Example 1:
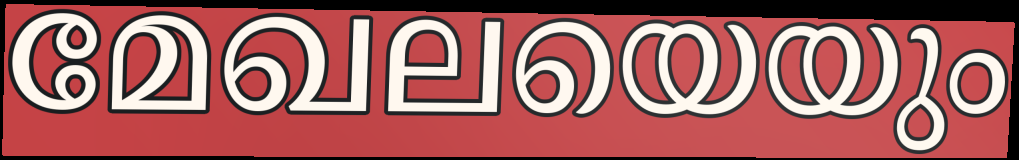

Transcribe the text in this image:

മേഖലയെയും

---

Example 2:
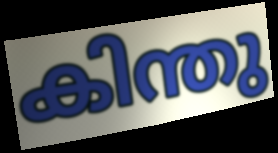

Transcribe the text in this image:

കിന്തു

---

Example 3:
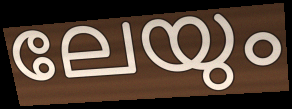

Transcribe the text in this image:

ലേയും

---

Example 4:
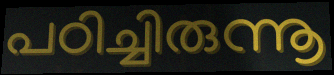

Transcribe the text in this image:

പഠിച്ചിരുന്നൂ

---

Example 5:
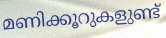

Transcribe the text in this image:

മണിക്കൂറുകളുണ്ട്